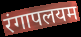
रंगापलयम